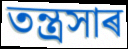
তন্ত্ৰসাৰ